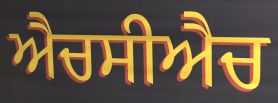
ਐਚਸੀਐਚ